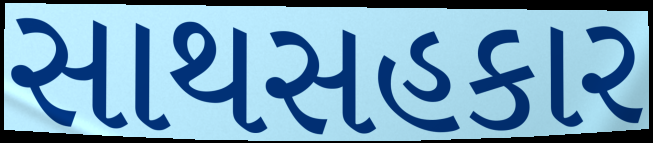
સાથસહકાર